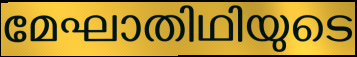
മേഘാതിഥിയുടെ